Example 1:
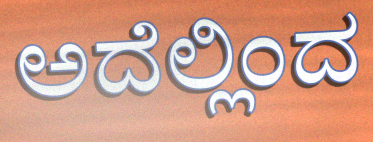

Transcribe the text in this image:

ಅದೆಲ್ಲಿಂದ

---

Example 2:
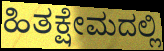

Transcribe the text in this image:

ಹಿತಕ್ಷೇಮದಲ್ಲಿ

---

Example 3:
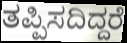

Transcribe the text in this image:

ತಪ್ಪಿಸದಿದ್ದರೆ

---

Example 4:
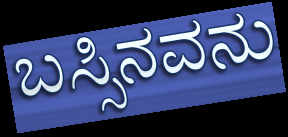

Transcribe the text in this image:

ಬಸ್ಸಿನವನು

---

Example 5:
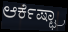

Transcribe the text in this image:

ಆರ್ಕೆಷ್ಟ್ರಾ